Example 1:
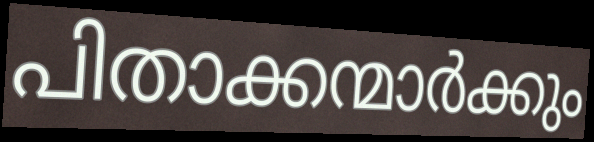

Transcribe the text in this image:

പിതാക്കന്മാർക്കും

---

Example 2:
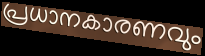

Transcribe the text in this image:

പ്രധാനകാരണവും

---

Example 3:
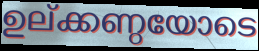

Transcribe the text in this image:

ഉല്ക്കണ്ഠയോടെ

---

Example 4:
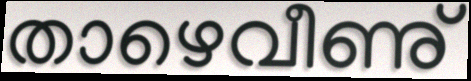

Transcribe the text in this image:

താഴെവീണു്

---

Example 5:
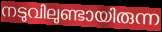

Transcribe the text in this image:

നടുവിലുണ്ടായിരുന്ന